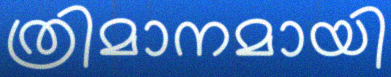
ത്രിമാനമായി